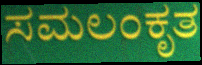
ಸಮಲಂಕೃತ